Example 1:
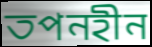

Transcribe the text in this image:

তপনহীন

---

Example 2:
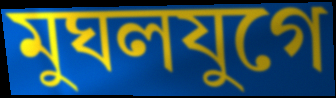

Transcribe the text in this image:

মুঘলযুগে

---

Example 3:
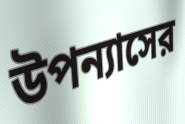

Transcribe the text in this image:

উপন্যাসের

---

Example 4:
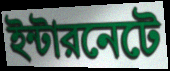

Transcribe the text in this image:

ইন্টারনেটে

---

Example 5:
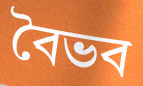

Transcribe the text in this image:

বৈভব